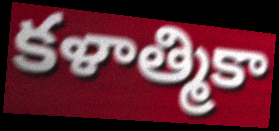
కళాత్మికా